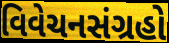
વિવેચનસંગ્રહો